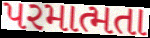
પરમાત્મતા